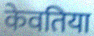
केवतिया